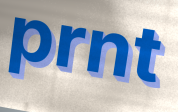
prnt